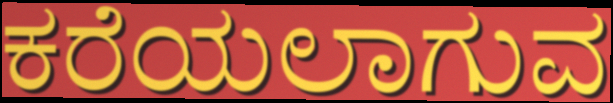
ಕರೆಯಲಾಗುವ